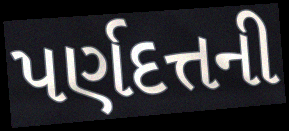
પર્ણદત્તની